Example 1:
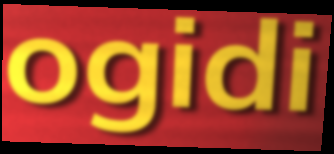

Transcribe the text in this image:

ogidi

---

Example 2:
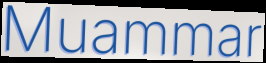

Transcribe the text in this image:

Muammar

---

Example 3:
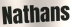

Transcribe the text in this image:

Nathans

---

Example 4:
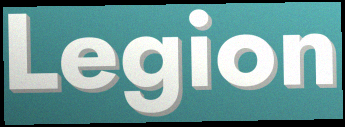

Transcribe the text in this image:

Legion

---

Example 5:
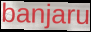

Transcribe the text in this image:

banjaru